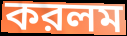
করলম